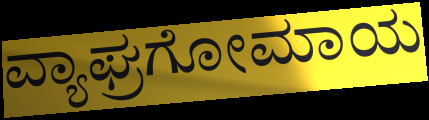
ವ್ಯಾಘ್ರಗೋಮಾಯ